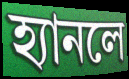
হ্যানলে